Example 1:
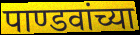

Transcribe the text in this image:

पाण्डवांच्या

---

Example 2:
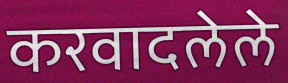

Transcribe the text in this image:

करवादलेले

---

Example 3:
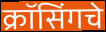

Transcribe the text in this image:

क्रॉसिंगचे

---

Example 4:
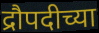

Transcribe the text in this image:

द्रौपदीच्या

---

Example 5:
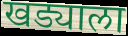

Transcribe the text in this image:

खड्याला